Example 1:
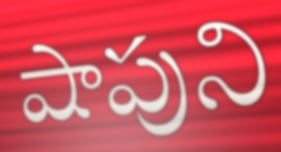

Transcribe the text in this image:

షాపుని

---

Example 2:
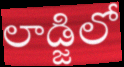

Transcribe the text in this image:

లాడ్జిలో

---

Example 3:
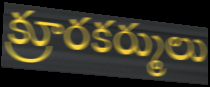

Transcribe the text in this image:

క్రూరకర్ములు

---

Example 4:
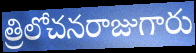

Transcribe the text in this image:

త్రిలోచనరాజుగారు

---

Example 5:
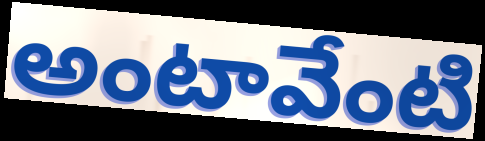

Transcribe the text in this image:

అంటావేంటి